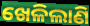
ଖେଳିଲାଣି